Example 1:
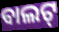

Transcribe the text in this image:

ବାଲଟ୍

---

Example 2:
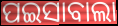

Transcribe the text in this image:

ପଇସାବାଲା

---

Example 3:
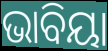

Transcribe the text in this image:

ଭାବିୟା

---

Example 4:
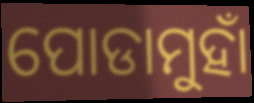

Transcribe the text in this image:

ପୋଡାମୁହାଁ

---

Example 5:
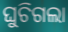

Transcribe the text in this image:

ଘୁଚିଗଲା